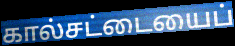
கால்சட்டையைப்